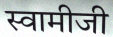
स्‍वामीजी